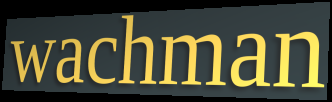
wachman